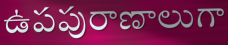
ఉపపురాణాలుగా